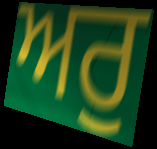
ਅਰੁ